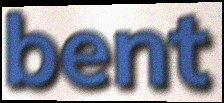
bent